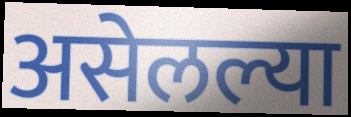
असेलल्या